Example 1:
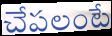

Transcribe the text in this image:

చేపలంటే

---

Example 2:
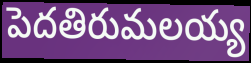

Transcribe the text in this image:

పెదతిరుమలయ్య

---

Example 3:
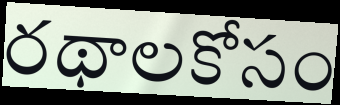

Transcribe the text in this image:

రథాలకోసం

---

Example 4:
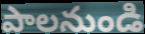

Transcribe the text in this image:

పాలనుండి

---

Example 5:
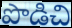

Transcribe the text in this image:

పొడిచి